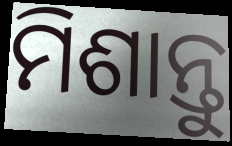
ମିଶାନ୍ତୁ